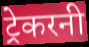
ट्रेकरनी